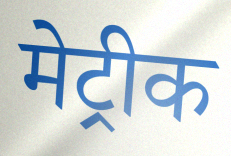
मेट्रीक